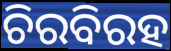
ଚିରବିରହ